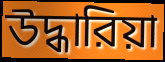
উদ্ধারিয়া